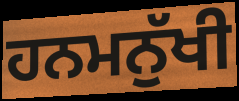
ਹਨਮਨੁੱਖੀ